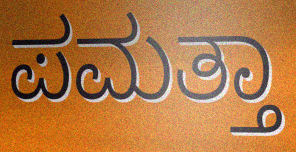
ಪಮತ್ತಾ